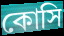
কোসি